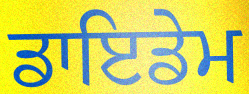
ਡਾਇਡੇਮ